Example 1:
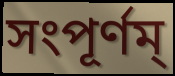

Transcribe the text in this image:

সংপূর্ণম্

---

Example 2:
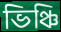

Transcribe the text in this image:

ভিঞ্চি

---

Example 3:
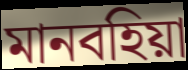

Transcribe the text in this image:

মানবহিয়া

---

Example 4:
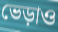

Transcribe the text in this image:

ভেড়াও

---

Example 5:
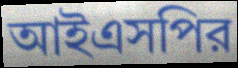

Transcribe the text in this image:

আইএসপির